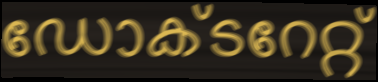
ഡോക്ടറേറ്റ്